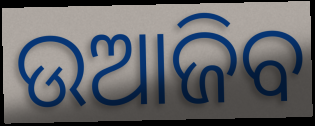
ଉଆଜିବ